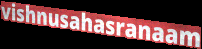
vishnusahasranaam